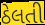
ઠેલતી